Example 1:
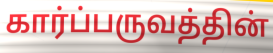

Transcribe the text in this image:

கார்ப்பருவத்தின்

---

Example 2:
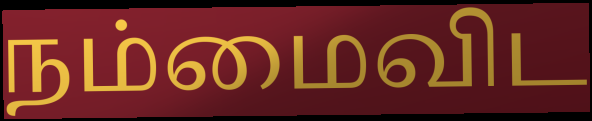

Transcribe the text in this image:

நம்மைவிட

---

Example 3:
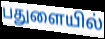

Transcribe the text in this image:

பதுளையில்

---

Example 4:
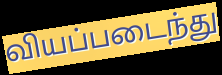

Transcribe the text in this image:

வியப்படைந்து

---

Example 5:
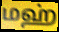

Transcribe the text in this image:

மஹ்